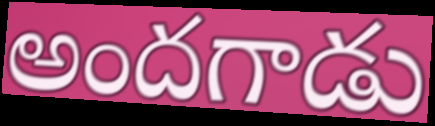
అందగాడు